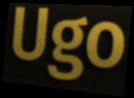
Ugo